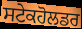
ਸਟੇਕਹੋਲਡਰ